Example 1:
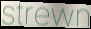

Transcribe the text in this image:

strewn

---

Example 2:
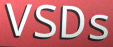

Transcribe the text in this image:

VSDs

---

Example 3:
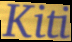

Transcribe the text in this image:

Kiti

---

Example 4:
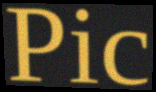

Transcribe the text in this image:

Pic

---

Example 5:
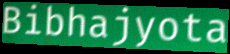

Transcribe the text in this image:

Bibhajyota